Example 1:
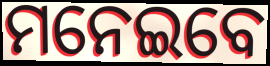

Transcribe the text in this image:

ମନେଇବେ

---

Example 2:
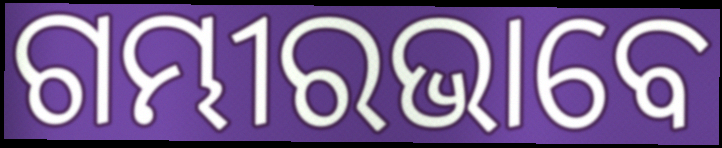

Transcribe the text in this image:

ଗମ୍ଭୀରଭାବେ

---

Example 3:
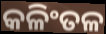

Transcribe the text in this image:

କଳିଂତଳ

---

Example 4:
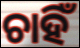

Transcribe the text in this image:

ଚାହିଁ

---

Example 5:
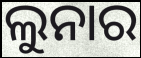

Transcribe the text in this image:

ଲୁନାର